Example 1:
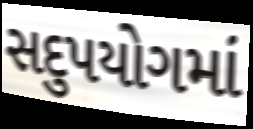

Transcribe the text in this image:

સદુપયોગમાં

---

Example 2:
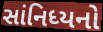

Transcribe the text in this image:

સાંનિધ્યનો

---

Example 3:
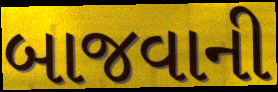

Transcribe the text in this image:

બાજવાની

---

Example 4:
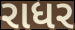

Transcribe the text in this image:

રાધર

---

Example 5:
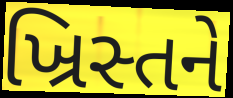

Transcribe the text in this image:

ખ્રિસ્તને